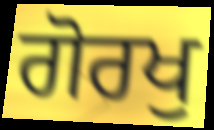
ਗੋਰਖੁ